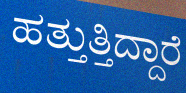
ಹತ್ತುತ್ತಿದ್ದಾರೆ